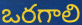
ఒరగాలి